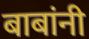
बाबांनी